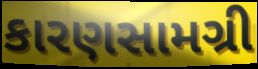
કારણસામગ્રી